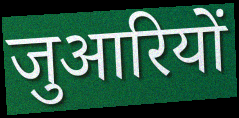
जुआरियों